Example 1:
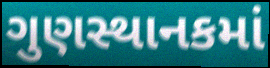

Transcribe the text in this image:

ગુણસ્થાનકમાં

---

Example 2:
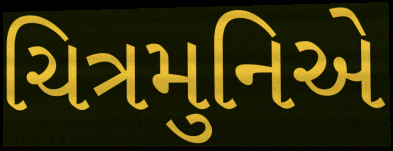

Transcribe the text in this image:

ચિત્રમુનિએ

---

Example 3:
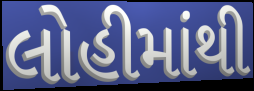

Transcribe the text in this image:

લોહીમાંથી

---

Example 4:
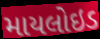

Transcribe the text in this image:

માયલોઇડ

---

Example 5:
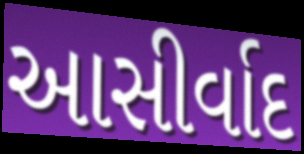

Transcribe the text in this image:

આસીર્વાદ